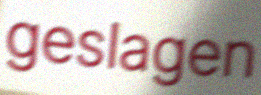
geslagen